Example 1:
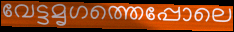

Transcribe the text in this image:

വേട്ടമൃഗത്തെപ്പോലെ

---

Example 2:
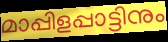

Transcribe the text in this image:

മാപ്പിളപ്പാട്ടിനും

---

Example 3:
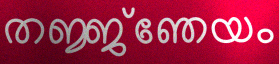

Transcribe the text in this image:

തജ്ജ്ഞേയം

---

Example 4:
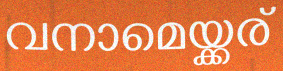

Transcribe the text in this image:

വനാമെയ്ക്കര്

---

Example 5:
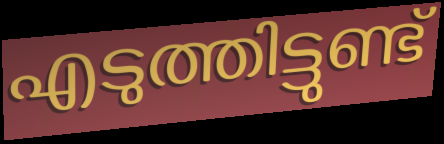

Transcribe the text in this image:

എടുത്തിട്ടുണ്ട്